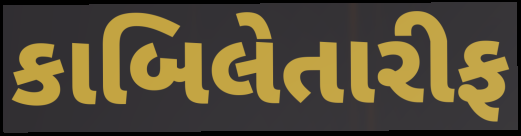
કાબિલેતારીફ